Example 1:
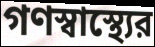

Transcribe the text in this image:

গণস্বাস্থ্যের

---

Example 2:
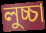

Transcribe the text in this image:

লুচ্চা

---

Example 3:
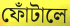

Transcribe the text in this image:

ফোঁটালে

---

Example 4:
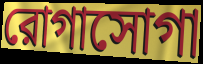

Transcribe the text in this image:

রোগাসোগা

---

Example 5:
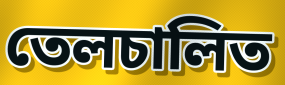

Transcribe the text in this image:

তেলচালিত